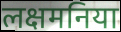
लक्षमनिया